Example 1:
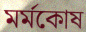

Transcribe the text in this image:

মর্মকোষ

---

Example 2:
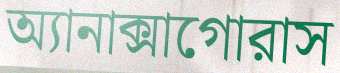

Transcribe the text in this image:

অ্যানাক্সাগোরাস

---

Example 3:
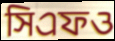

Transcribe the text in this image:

সিএফও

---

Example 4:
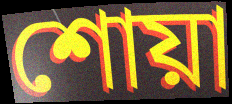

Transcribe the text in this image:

শোয়া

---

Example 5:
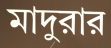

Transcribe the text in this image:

মাদুরার